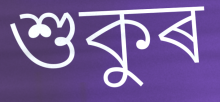
শুকুৰ